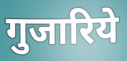
गुजारिये